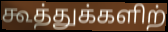
கூத்துக்களிற்